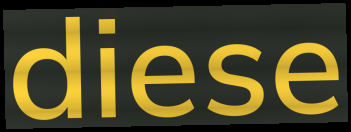
diese